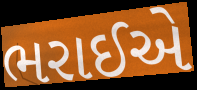
ભરાઈએ